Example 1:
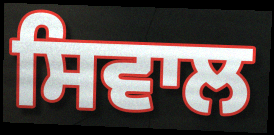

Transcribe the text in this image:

ਸਿਵਾਲ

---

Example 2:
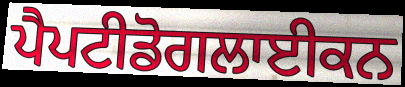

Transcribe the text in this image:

ਪੈਪਟੀਡੋਗਲਾਈਕਨ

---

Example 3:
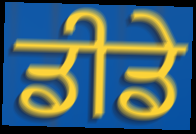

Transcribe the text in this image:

ਡੀਡੇ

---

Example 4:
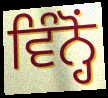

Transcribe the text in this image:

ਵਿੰਨ੍ਹੋਂ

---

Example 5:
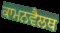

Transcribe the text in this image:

ਕਾਮਨਵੈਲਥ